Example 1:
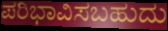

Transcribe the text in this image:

ಪರಿಭಾವಿಸಬಹುದು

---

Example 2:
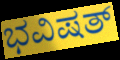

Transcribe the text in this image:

ಭವಿಷತ್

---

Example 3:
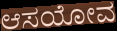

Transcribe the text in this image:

ಆಸಯೋವ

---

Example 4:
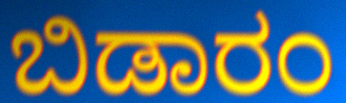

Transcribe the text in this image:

ಬಿಡಾರಂ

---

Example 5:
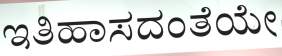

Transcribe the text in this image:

ಇತಿಹಾಸದಂತೆಯೇ